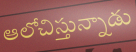
ఆలోచిస్తున్నాడు